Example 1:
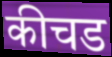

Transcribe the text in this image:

कीचड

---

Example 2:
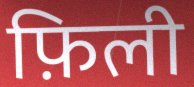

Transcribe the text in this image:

फ़िली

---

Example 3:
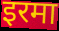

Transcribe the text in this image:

इरमा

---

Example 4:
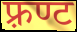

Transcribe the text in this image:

फ़्रण्ट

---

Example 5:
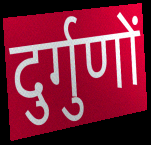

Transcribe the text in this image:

दुर्गुणों